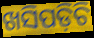
ଖସିପଡ଼ିଚି